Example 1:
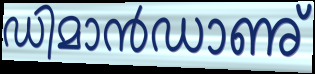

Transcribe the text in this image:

ഡിമാൻഡാണു്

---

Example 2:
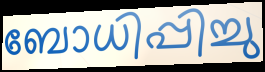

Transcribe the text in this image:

ബോധിപ്പിച്ചു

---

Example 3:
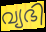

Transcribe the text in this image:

വ്യഭി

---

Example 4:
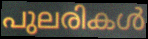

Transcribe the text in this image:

പുലരികൾ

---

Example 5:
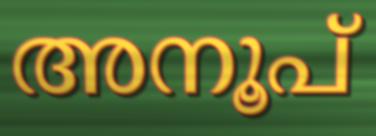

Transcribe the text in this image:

അനൂപ്